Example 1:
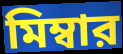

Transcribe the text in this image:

মিম্বার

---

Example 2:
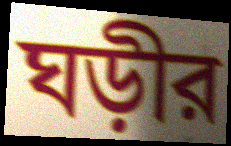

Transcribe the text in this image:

ঘড়ীর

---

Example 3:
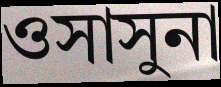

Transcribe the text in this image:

ওসাসুনা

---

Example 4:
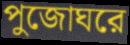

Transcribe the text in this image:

পুজোঘরে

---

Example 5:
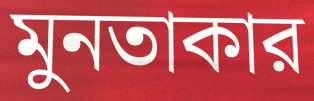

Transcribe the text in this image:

মুনতাকার